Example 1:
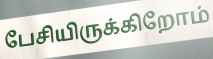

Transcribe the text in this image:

பேசியிருக்கிறோம்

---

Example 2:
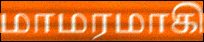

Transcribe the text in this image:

மாமரமாகி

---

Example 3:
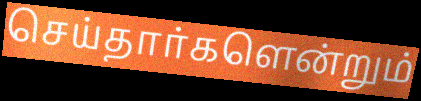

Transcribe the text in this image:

செய்தார்களென்றும்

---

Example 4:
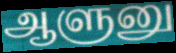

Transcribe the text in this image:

ஆளுனு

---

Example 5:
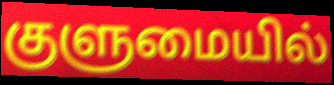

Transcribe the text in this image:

குளுமையில்